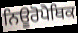
ਨਿਊਰੋਪੈਥਿਕ